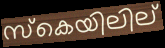
സ്കെയിലില്